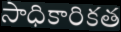
సాధికారికత